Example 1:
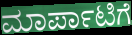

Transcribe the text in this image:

ಮಾರ್ಪಾಟಿಗೆ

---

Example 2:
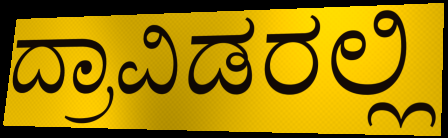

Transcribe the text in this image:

ದ್ರಾವಿಡರಲ್ಲಿ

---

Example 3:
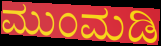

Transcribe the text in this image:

ಮುಂಮಡಿ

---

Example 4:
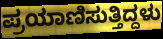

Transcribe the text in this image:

ಪ್ರಯಾಣಿಸುತ್ತಿದ್ದಳು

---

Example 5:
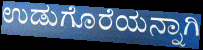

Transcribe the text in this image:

ಉಡುಗೊರೆಯನ್ನಾಗಿ